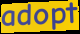
adopt